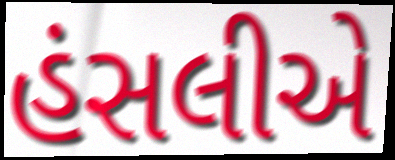
હંસલીએ